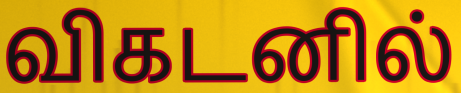
விகடனில்